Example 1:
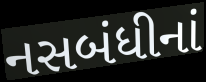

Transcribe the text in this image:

નસબંધીનાં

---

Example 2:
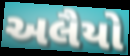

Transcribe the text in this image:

અલૈયો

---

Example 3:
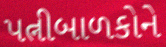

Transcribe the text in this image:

પત્નીબાળકોને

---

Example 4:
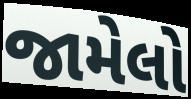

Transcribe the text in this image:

જામેલો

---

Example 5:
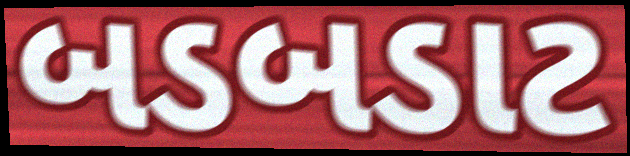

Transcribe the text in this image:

બડબડાટ